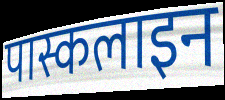
पास्कलाइन